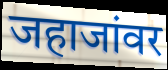
जहाजांवर